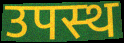
उपस्थ